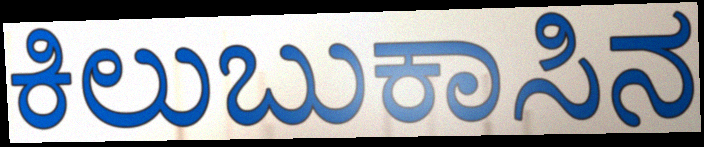
ಕಿಲುಬುಕಾಸಿನ